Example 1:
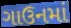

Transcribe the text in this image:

ગાઉનમાં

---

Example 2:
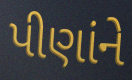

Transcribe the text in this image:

પીણાંને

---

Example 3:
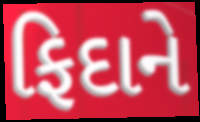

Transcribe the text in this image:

ફિદાને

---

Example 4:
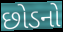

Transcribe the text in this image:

છોડનો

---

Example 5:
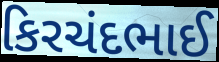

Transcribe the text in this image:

કિરચંદભાઈ